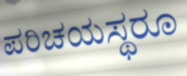
ಪರಿಚಯಸ್ಥರೂ